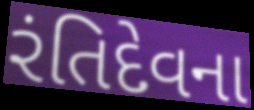
રંતિદેવના